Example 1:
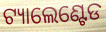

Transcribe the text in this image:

ଟ୍ୟାଲେଣ୍ଟେଡ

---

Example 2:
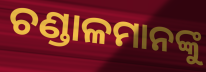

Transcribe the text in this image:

ଚଣ୍ଡାଳମାନଙ୍କୁ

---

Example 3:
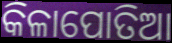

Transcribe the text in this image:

କିଳାପୋତିଆ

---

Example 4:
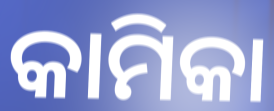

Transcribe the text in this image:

କାମିକା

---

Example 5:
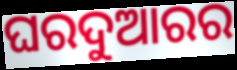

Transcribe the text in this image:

ଘରଦୁଆରର